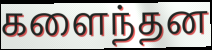
களைந்தன